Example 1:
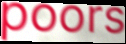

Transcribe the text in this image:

poors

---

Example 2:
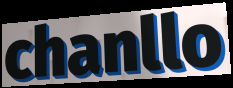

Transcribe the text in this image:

chanllo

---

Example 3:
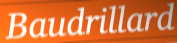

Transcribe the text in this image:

Baudrillard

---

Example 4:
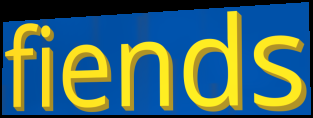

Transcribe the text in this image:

fiends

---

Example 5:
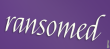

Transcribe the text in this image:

ransomed